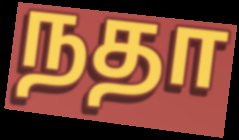
நதா